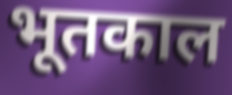
भूतकाल